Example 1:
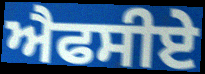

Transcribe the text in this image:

ਐਫਸੀਏ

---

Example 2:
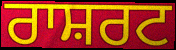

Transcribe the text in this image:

ਰਾਸ਼ਰਟ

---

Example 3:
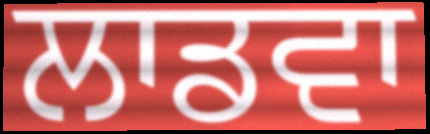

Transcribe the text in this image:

ਲਾਡਵਾ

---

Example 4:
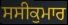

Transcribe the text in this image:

ਸਸੀਕੁਮਾਰ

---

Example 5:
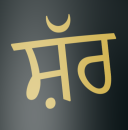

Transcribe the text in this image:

ਸ਼ੱਰ